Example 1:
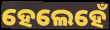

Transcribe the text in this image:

ହେଲେହେଁ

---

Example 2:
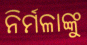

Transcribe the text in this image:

ନିର୍ମଳାଙ୍କୁ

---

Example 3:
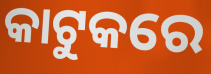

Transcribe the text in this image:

କାଟୁକରେ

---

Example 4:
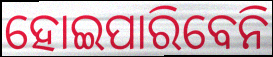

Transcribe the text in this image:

ହୋଇପାରିବେନି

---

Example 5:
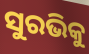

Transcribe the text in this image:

ସୁରଭିକୁ